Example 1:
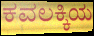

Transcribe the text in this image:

ಕವಲಕ್ಕಿಯ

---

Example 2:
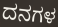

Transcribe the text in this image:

ದನಗಳ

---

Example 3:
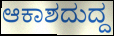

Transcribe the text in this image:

ಆಕಾಶದುದ್ದ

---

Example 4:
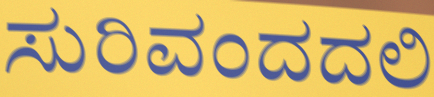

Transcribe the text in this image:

ಸುರಿವಂದದಲಿ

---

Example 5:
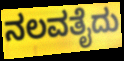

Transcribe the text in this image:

ನಲವತೈದು